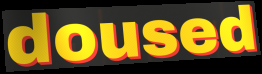
doused